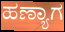
ಹಣ್ಯಾಗ